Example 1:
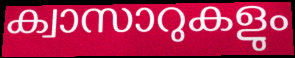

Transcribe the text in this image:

ക്വാസാറുകളും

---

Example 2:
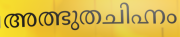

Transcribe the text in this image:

അത്ഭുതചിഹ്നം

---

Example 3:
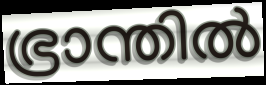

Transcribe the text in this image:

ഭ്രാന്തിൽ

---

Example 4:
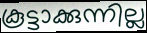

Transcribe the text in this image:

കൂട്ടാക്കുന്നില്ല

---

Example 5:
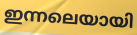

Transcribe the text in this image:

ഇന്നലെയായി